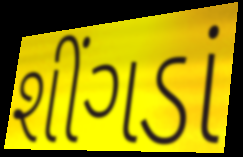
શીંગડાં